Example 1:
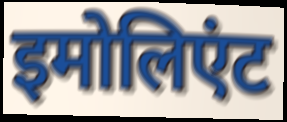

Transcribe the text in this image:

इमोलिएंट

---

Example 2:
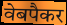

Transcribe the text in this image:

वेबपैकर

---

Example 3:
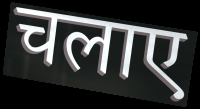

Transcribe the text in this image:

चलाए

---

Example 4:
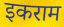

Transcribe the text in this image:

इकराम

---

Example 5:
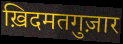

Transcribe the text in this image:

ख़िदमतगुज़ार